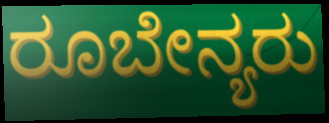
ರೂಬೇನ್ಯರು